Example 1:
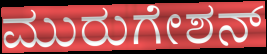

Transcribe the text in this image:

ಮುರುಗೇಶನ್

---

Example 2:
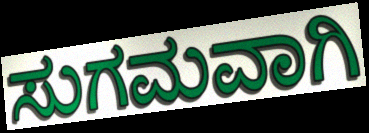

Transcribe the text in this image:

ಸುಗಮವಾಗಿ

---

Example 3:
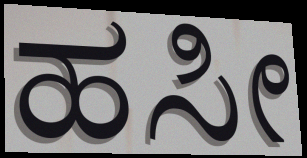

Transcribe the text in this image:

ಹಸೀ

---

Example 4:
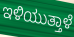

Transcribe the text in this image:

ಇಳಿಯುತ್ತಾಳೆ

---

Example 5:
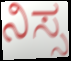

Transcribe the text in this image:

ನಿಸ್ಸ